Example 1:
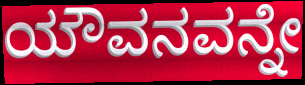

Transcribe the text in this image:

ಯೌವನವನ್ನೇ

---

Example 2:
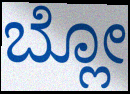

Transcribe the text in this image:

ಬ್ಲೋ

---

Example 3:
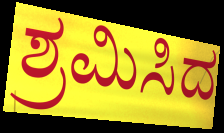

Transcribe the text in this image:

ಶ್ರಮಿಸಿದ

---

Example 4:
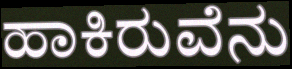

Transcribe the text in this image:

ಹಾಕಿರುವೆನು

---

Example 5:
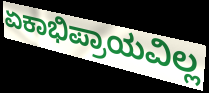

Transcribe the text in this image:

ಏಕಾಭಿಪ್ರಾಯವಿಲ್ಲ